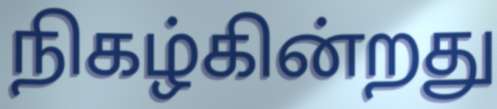
நிகழ்கின்றது